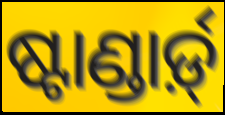
ଷ୍ଟାଣ୍ଡାର୍ଡ଼୍